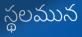
స్థలమున